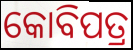
କୋବିପତ୍ର